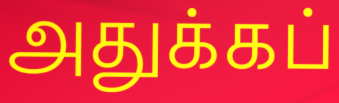
அதுக்கப்